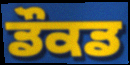
ਡੌਕਡ